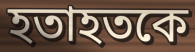
হতাহতকে